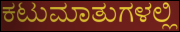
ಕಟುಮಾತುಗಳಲ್ಲಿ